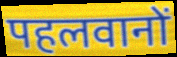
पहलवानों